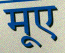
मूए